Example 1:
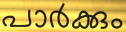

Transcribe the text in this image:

പാർക്കും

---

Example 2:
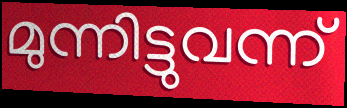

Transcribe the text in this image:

മുന്നിട്ടുവന്ന്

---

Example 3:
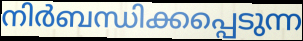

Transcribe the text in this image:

നിർബന്ധിക്കപ്പെടുന്ന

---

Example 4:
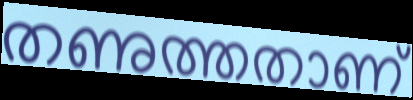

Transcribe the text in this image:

തണുത്തതാണ്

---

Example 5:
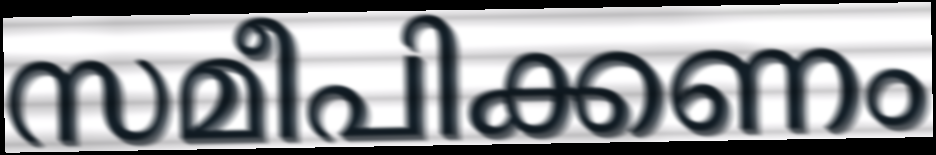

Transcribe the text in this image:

സമീപിക്കണം